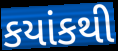
કયાંકથી